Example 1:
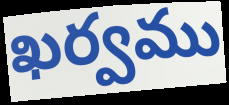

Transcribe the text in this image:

ఖర్వము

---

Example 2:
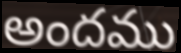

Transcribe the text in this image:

అందము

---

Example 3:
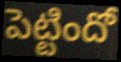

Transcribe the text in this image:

పెట్టిందో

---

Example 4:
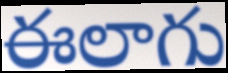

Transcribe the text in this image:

ఈలాగు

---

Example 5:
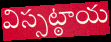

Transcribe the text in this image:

విస్సట్ఠాయ